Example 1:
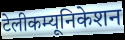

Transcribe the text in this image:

टेलीकम्‍यूनिकेशन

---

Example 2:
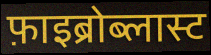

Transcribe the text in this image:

फ़ाइब्रोब्लास्ट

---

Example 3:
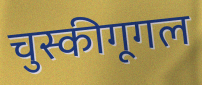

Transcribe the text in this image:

चुस्कीगूगल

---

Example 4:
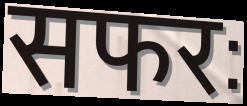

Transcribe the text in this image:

सफरः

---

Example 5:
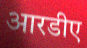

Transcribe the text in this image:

आरडीए